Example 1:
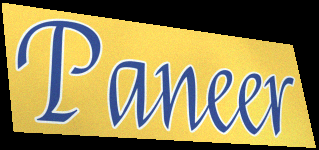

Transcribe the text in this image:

Paneer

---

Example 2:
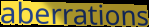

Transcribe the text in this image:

aberrations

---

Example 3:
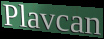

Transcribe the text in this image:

Plavcan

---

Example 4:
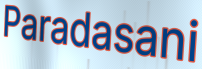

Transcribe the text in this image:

Paradasani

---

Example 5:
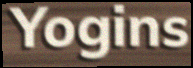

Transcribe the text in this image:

Yogins